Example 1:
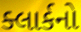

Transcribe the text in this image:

ક્લાર્કનો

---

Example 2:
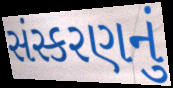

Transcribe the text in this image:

સંસ્કરણનું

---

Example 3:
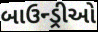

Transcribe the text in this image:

બાઉન્ડ્રીઓ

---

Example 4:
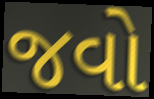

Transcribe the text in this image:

જવો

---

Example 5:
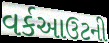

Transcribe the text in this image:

વર્કઆઉટની